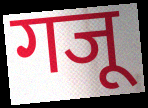
गजू